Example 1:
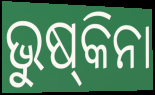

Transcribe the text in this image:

ଭୁଷ୍‌କିନା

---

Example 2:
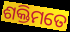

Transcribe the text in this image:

ଶକ୍ତିମତେ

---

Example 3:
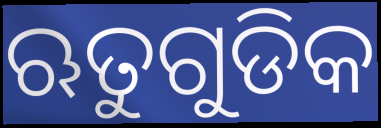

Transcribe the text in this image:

ଋତୁଗୁଡିକ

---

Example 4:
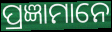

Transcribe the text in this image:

ପ୍ରଜ୍ଞାମାନେ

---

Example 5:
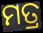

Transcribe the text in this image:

ମତ୍ର